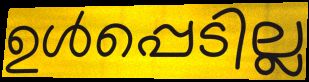
ഉൾപ്പെടില്ല